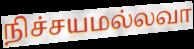
நிச்சயமல்லவா